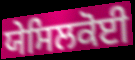
ਯੇਸਿਲਕੋਈ